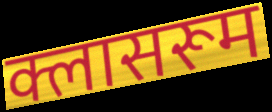
क्लासरूम